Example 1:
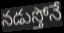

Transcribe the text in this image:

నడుస్తోనే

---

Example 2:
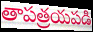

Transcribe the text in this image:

తాపత్రయపడి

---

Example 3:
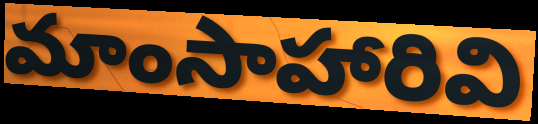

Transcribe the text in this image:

మాంసాహారివి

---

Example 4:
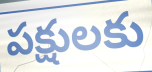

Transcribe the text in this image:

పక్షులకు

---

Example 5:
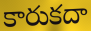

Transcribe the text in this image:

కారుకదా